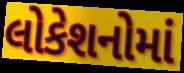
લોકેશનોમાં